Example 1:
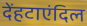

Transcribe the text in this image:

देंहटाएंदिल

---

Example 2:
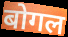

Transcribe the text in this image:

बोगल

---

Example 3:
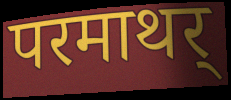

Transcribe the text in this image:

परमाथर्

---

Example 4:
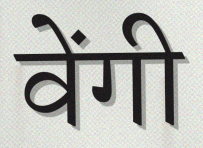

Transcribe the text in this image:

वेंगी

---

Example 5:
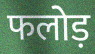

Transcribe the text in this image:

फलोड़